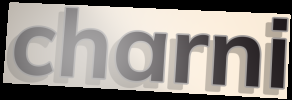
charni